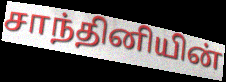
சாந்தினியின்